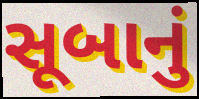
સૂબાનું